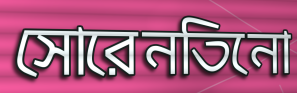
সোরেনতিনো